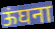
ऊंघना